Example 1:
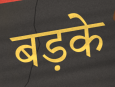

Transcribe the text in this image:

बड़के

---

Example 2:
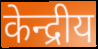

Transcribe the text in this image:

केन्द्रीय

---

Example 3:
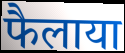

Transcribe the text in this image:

फैलाया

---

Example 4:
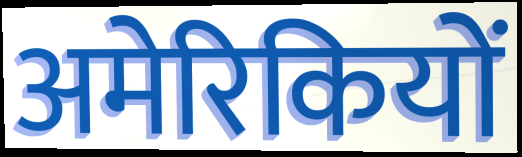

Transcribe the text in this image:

अमेरिकियों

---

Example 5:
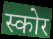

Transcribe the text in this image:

स्कोर